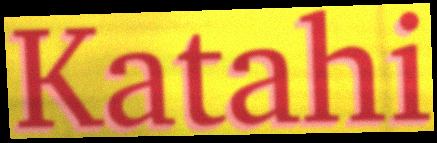
Katahi